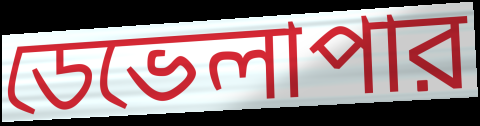
ডেভেলাপার